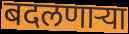
बदलणाऱ्या